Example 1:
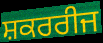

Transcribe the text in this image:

ਸ਼ਕਰਰੀਜ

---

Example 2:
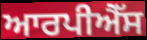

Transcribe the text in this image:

ਆਰਪੀਐੱਸ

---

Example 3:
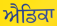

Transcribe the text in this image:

ਐਡਿਕਾ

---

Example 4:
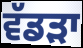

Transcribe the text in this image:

ਵੱਡਡ਼ਾ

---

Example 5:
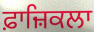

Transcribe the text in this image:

ਫ਼ਾਜ਼ਿਕਲਾ